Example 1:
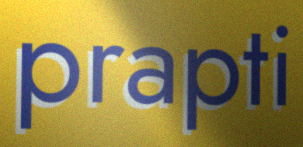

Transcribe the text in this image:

prapti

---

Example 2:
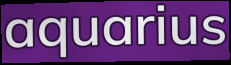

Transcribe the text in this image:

aquarius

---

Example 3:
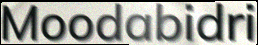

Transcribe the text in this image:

Moodabidri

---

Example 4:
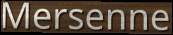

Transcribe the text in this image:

Mersenne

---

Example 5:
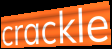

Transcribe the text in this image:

crackle